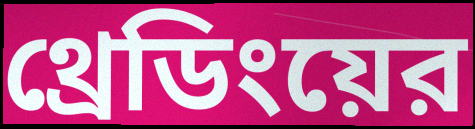
থ্রেডিংয়ের